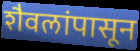
शैवलांपासून